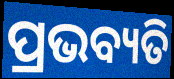
ପ୍ରଭବ୍ୟତି